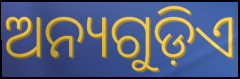
ଅନ୍ୟଗୁଡ଼ିଏ